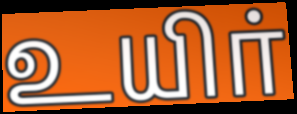
உயிர்